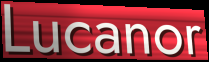
Lucanor